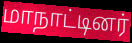
மாநாட்டினர்